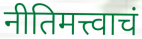
नीतिमत्त्वाचं